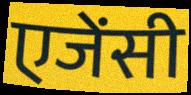
एजेंसी